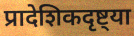
प्रादेशिकदृष्ट्या